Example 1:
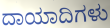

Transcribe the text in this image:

ದಾಯಾದಿಗಳು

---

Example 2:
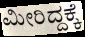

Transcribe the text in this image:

ಮೀರಿದ್ದಕ್ಕೆ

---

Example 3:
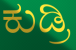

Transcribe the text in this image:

ಕುಡ್ರಿ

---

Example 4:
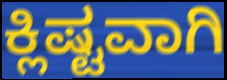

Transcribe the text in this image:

ಕ್ಲಿಷ್ಟವಾಗಿ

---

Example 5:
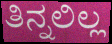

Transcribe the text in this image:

ತಿನ್ನಲಿಲ್ಲ